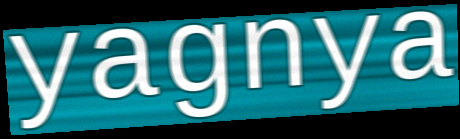
yagnya